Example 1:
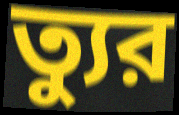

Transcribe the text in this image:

ত্যুর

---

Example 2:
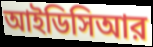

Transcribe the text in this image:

আইডিসিআর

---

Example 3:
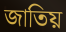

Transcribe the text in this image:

জাতিয়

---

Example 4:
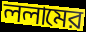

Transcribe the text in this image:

ললামের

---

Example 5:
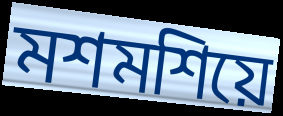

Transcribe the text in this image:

মশমশিয়ে